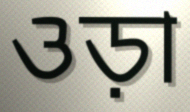
ওড়া